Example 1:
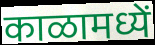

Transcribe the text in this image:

काळामध्यें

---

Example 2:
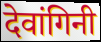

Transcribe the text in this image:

देवांगिनी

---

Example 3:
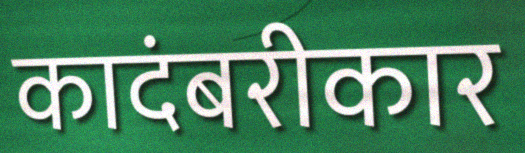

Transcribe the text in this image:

कादंबरीकार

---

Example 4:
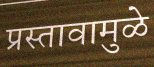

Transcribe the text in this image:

प्रस्तावामुळे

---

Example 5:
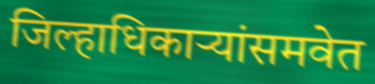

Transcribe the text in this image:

जिल्हाधिकाऱ्यांसमवेत